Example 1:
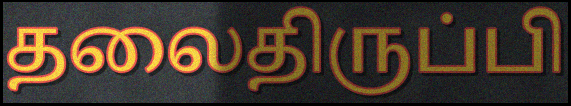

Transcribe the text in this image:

தலைதிருப்பி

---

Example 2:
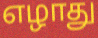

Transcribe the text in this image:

எழாது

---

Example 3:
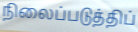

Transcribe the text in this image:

நிலைப்படுத்திப்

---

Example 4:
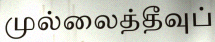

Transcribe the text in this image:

முல்லைத்தீவுப்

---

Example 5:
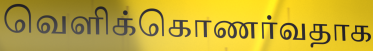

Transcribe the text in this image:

வெளிக்கொணர்வதாக